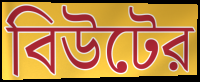
বিউটের